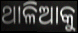
ଥାଳିଆକୁ